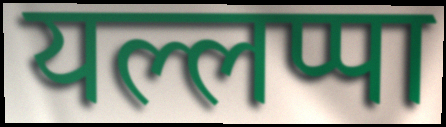
यल्लप्पा